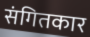
संगितकार